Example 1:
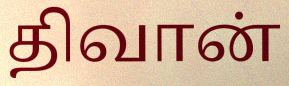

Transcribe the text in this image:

திவான்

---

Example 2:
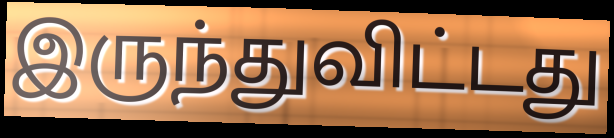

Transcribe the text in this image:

இருந்துவிட்டது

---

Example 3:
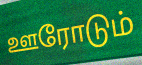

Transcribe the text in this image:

ஊரோடும்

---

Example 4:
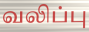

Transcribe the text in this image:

வலிப்பு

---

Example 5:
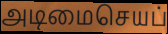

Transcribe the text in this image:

அடிமைசெயப்